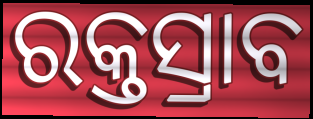
ରକ୍ତସ୍ରାବ